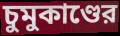
চুমুকাণ্ডের